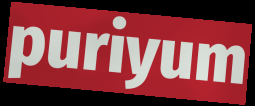
puriyum